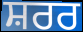
ਸ਼ਰਰ